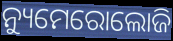
ନ୍ୟୁମେରୋଲୋଜି